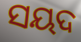
ସୟଦ